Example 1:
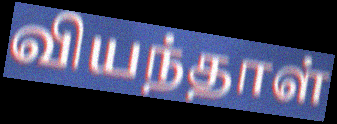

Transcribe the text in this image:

வியந்தாள்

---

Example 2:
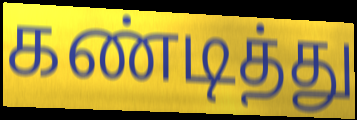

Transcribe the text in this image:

கண்டித்து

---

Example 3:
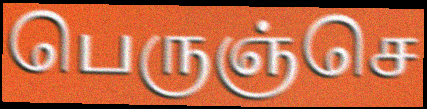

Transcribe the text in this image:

பெருஞ்செ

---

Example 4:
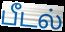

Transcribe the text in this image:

பீடல்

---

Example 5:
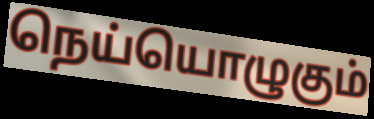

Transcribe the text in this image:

நெய்யொழுகும்